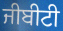
ਜੀਬੀਟੀ